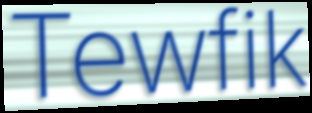
Tewfik